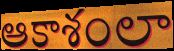
ఆకాశంలా